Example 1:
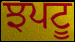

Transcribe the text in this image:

ਝਪਟੂ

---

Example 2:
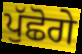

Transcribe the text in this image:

ਪੁੱਛੋਗੇ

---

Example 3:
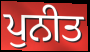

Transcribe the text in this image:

ਪੁਨੀਤ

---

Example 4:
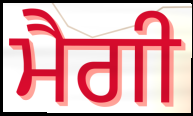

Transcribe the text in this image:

ਮੈਗੀ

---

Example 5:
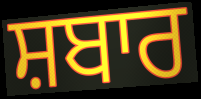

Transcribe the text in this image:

ਸ਼ਬਾਰ